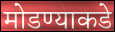
मोडण्याकडे